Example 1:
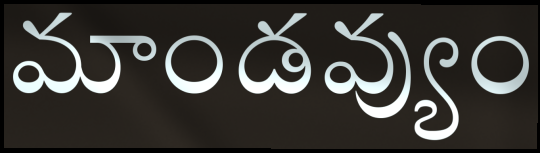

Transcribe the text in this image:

మాండవ్యుం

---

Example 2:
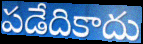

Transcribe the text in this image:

పడేదికాదు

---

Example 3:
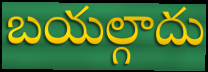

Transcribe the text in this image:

బయల్గాదు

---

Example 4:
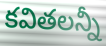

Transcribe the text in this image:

కవితలన్నీ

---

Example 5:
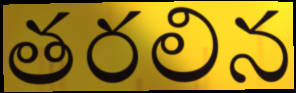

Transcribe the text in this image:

తరలిన